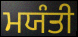
ਮਯੰਤੀ